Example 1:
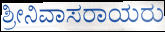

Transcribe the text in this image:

ಶ್ರೀನಿವಾಸರಾಯರು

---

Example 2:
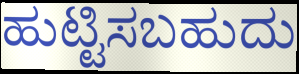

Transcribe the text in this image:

ಹುಟ್ಟಿಸಬಹುದು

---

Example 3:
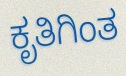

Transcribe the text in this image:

ಕೃತಿಗಿಂತ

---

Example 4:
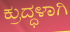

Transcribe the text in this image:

ಕ್ರುದ್ಧಳಾಗಿ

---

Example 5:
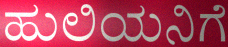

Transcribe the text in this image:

ಹುಲಿಯನಿಗೆ